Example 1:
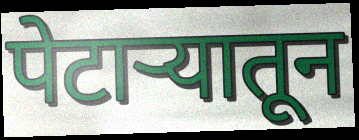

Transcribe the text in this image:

पेटाऱ्यातून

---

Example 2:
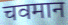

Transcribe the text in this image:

चवमान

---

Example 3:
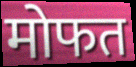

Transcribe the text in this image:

मोफत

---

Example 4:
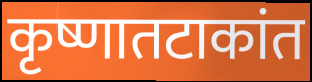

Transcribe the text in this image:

कृष्णातटाकांत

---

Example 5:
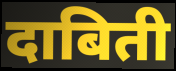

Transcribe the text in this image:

दाबिती